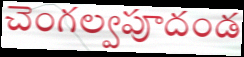
చెంగల్వపూదండ